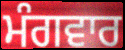
ਮੰਗਵਾਰ